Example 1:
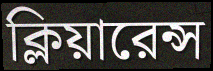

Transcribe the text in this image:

ক্লিয়ারেন্স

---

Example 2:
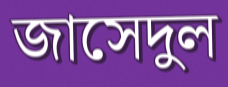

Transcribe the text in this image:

জাসেদুল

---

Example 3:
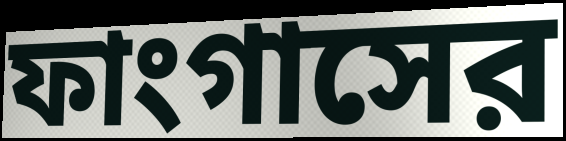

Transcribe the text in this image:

ফাংগাসের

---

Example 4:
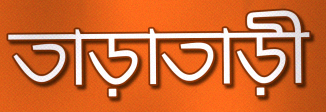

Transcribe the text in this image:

তাড়াতাড়ী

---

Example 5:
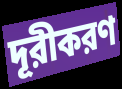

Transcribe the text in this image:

দূরীকরণ